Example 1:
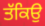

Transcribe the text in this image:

ਤੱਕਿਉ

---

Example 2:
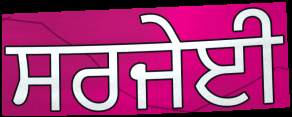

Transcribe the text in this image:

ਸਰਜੇਈ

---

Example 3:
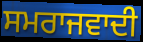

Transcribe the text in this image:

ਸਮਰਾਜਵਾਦੀ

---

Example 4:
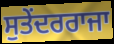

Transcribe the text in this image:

ਸੁਤੇਂਦਰਰਾਜਾ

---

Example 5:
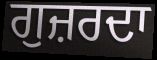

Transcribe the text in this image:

ਗੁਜ਼ਰਦਾ